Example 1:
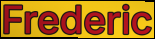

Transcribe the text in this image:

Frederic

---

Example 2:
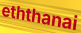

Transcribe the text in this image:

eththanai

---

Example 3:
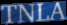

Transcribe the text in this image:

TNLA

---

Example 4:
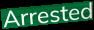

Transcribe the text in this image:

Arrested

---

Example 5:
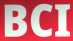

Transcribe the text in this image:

BCI